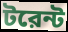
টরেন্ট